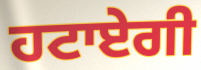
ਹਟਾਏਗੀ